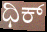
ಧಿಕ್